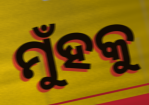
ମୁଁହକୁ